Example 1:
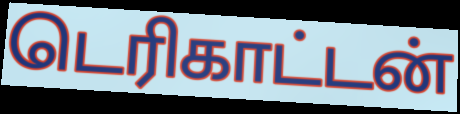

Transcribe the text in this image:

டெரிகாட்டன்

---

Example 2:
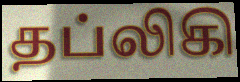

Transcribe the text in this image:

தப்லிகி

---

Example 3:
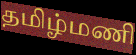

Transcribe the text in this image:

தமிழ்மணி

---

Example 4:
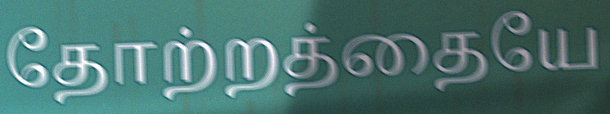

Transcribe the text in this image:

தோற்றத்தையே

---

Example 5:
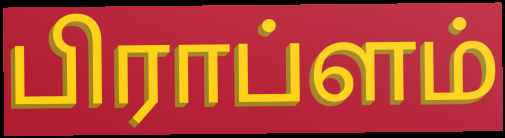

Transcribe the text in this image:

பிராப்ளம்